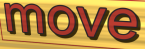
move